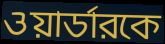
ওয়ার্ডারকে